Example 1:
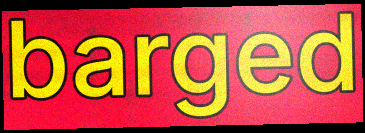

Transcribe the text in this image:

barged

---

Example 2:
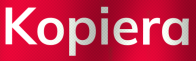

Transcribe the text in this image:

Kopiera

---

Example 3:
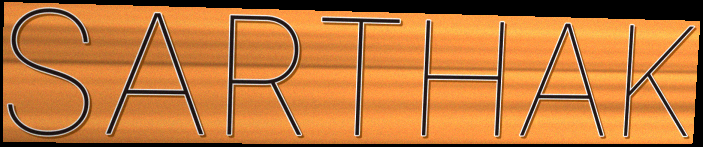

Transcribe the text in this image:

SARTHAK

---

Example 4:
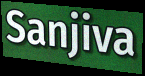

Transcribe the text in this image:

Sanjiva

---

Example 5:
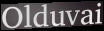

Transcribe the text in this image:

Olduvai